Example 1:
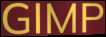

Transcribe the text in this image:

GIMP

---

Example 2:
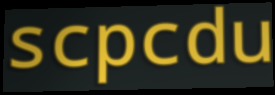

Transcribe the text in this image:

scpcdu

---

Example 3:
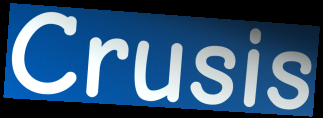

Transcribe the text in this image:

Crusis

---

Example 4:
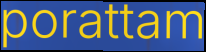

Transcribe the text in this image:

porattam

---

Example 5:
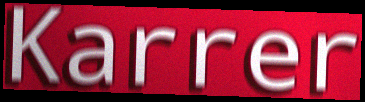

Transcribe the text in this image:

Karrer